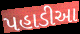
પહાડીઆ